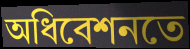
অধিবেশনতে